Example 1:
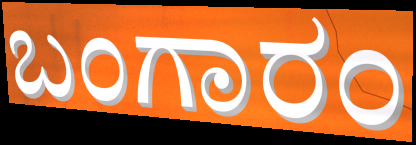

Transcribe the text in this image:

ಬಂಗಾರಂ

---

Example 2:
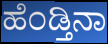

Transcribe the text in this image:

ಹೆಂಡ್ತಿನಾ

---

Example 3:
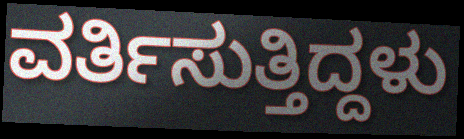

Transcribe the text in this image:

ವರ್ತಿಸುತ್ತಿದ್ದಳು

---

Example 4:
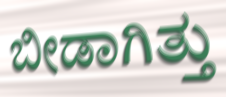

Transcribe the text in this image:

ಬೀಡಾಗಿತ್ತು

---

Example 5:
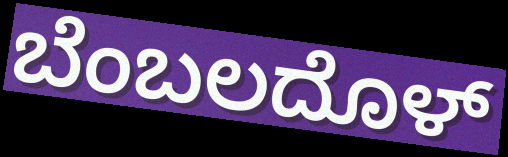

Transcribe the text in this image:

ಬೆಂಬಲದೊಳ್